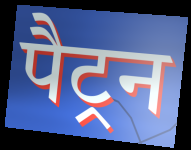
पैट्रन